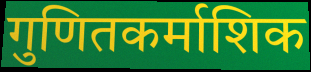
गुणितकर्माशिक